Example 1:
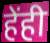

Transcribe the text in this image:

हेंही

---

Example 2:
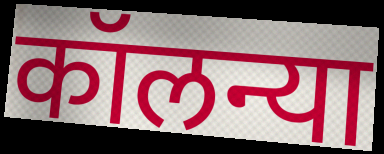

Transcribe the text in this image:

कॉलन्या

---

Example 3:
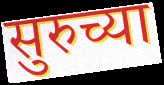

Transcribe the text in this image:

सुरुच्या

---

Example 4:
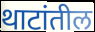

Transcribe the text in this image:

थाटांतील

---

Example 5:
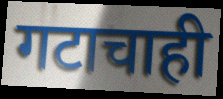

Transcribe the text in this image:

गटाचाही